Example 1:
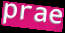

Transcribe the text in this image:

prae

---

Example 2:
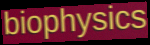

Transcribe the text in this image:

biophysics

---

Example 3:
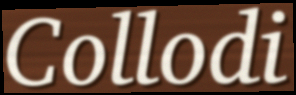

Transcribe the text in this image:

Collodi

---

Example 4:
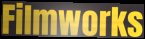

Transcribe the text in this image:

Filmworks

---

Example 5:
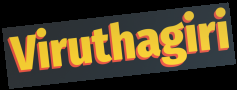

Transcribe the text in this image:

Viruthagiri